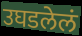
उघडलेलं